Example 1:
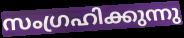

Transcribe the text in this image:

സംഗ്രഹിക്കുന്നു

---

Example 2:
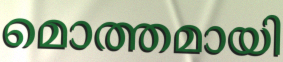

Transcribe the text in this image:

മൊത്തമായി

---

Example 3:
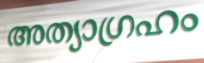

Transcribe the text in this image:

അത്യാഗ്രഹം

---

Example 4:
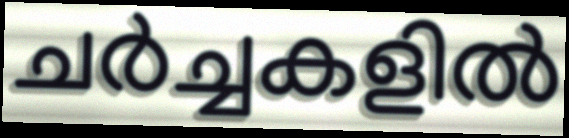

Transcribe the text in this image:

ചർച്ചകളിൽ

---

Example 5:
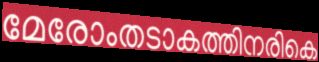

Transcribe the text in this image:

മേരോംതടാകത്തിനരികെ